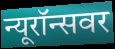
न्यूरॉन्सवर